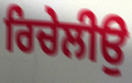
ਰਿਚੇਲੀਉ